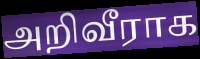
அறிவீராக